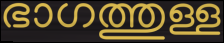
ഭാഗത്തുള്ള